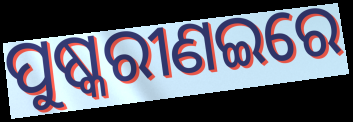
ପୁଷ୍କରୀଣଇରେ